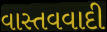
વાસ્તવવાદી